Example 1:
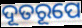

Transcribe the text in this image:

ଦୂତରୂପେ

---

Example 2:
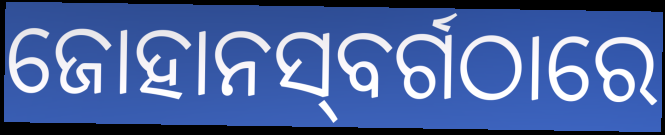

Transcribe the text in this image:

ଜୋହାନସ୍‌ବର୍ଗଠାରେ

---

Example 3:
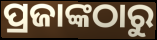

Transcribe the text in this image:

ପ୍ରଜାଙ୍କଠାରୁ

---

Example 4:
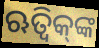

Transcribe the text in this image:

ଋତ୍ୱିକ୍‌ଙ୍କ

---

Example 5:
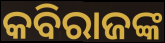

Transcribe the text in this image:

କବିରାଜଙ୍କ